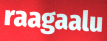
raagaalu